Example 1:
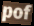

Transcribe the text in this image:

pof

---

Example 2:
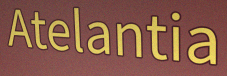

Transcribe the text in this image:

Atelantia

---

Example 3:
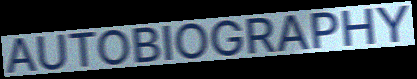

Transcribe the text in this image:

AUTOBIOGRAPHY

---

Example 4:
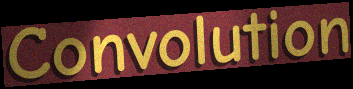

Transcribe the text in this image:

Convolution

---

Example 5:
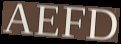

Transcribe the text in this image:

AEFD